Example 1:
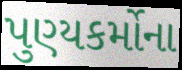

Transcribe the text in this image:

પુણ્યકર્મોના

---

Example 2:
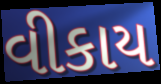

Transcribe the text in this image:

વીકાય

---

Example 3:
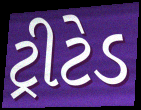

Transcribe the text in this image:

ટ્રીટેડ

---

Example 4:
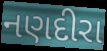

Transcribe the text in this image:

નણદીરા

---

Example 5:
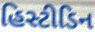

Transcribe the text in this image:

હિસ્ટીડિન